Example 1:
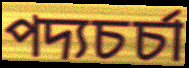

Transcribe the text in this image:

পদ্যচর্চা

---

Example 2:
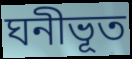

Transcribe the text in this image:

ঘনীভূত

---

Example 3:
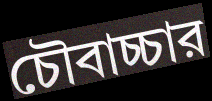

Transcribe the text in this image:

চৌবাচ্চার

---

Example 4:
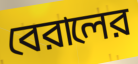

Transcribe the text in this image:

বেরালের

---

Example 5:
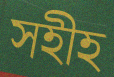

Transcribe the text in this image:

সহীহ